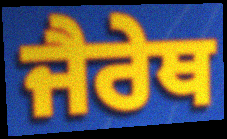
ਜੈਰੇਥ